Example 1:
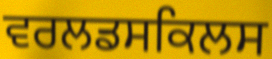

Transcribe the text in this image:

ਵਰਲਡਸਕਿਲਸ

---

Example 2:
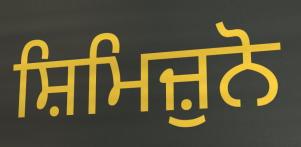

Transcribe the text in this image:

ਸ਼ਿਮਿਜ਼ੁਨੋ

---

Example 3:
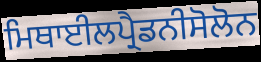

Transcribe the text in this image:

ਮਿਥਾਈਲਪ੍ਰੈਡਨੀਸੋਲੋਨ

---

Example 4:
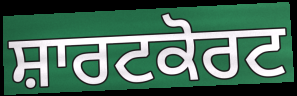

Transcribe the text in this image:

ਸ਼ਾਰਟਕੋਰਟ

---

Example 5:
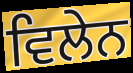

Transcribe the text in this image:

ਵਿਲੇਨ